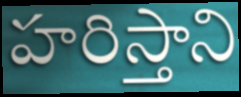
హరిస్తాని